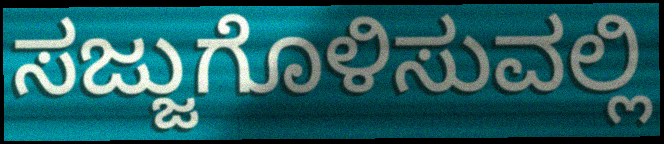
ಸಜ್ಜುಗೊಳಿಸುವಲ್ಲಿ